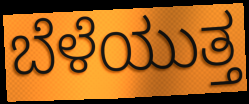
ಬೆಳೆಯುತ್ತ